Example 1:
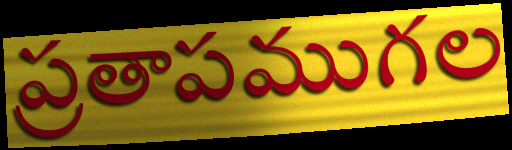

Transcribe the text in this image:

ప్రతాపముగల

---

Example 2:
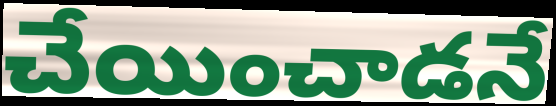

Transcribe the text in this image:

చేయించాడనే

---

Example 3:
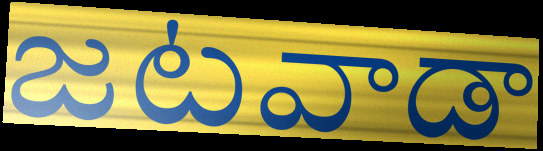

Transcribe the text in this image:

జటవాడా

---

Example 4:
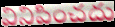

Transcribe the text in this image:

వినిపించదు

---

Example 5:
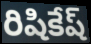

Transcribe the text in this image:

రిషికేష్